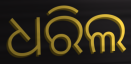
ଧରିଲ